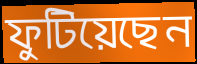
ফুটিয়েছেন